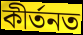
কীৰ্তনত